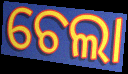
ଚେଲା